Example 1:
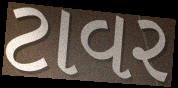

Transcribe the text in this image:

ટાવર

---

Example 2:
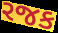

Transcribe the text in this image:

રજક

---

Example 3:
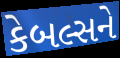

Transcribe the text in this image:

કેબલ્સને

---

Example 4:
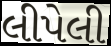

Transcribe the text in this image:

લીપેલી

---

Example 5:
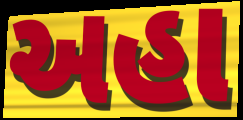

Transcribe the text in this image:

અહા